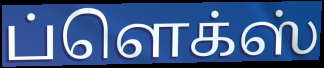
ப்ளெக்ஸ்